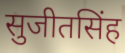
सुजीतसिंह